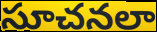
సూచనలా